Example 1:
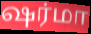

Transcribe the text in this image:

ஷர்மா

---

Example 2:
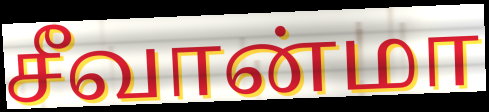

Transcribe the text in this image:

சீவான்மா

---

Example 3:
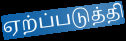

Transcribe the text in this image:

ஏற்ப்படுத்தி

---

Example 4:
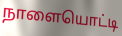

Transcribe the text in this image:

நாளையொட்டி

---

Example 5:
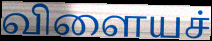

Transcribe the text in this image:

விளையச்